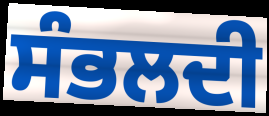
ਸੰਭਲਦੀ